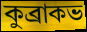
কুব্রাকভ